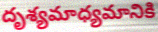
దృశ్యమాధ్యమానికి